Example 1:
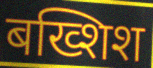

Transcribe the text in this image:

बख्शिश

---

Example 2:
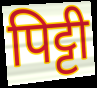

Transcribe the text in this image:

पिट्टी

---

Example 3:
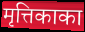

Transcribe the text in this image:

मृत्तिकाका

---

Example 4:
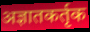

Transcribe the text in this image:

अज्ञातकर्तृक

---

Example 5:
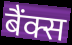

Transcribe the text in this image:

बैंक्स